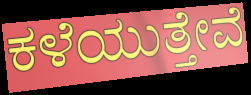
ಕಳೆಯುತ್ತೇವೆ